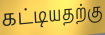
கட்டியதற்கு